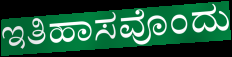
ಇತಿಹಾಸವೊಂದು